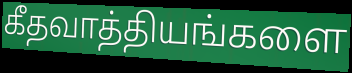
கீதவாத்தியங்களை